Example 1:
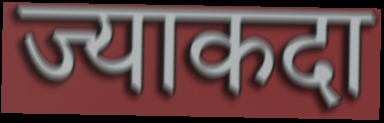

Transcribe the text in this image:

ज्याकदा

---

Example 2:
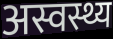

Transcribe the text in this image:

अस्वस्थ्य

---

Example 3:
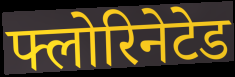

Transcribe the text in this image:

फ्लोरिनेटेड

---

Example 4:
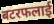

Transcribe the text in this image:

बटरफलाई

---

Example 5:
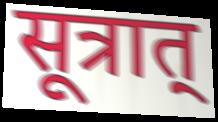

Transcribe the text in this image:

सूत्रात्